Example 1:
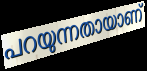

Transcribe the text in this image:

പറയുന്നതായാണ്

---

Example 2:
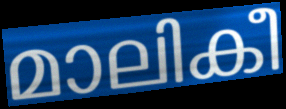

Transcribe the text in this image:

മാലികീ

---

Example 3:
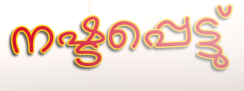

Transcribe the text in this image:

നഷ്ടപ്പെട്ടു്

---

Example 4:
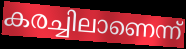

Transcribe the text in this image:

കരച്ചിലാണെന്ന്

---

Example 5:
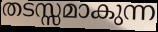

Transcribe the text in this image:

തടസ്സമാകുന്ന